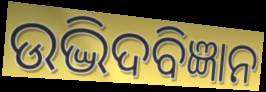
ଉଦ୍ଭିଦବିଜ୍ଞାନ